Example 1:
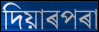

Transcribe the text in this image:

দিয়াৰপৰা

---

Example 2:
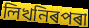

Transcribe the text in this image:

লিখনিৰপৰা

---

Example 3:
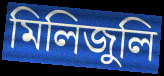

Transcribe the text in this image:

মিলিজুলি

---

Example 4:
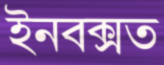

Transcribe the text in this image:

ইনবক্সত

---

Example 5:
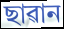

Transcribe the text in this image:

ছাৱান